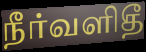
நீர்வளிதீ